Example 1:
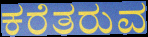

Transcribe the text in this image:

ಕರೆತರುವ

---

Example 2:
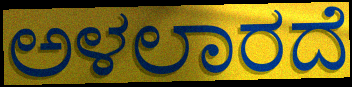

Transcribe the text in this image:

ಅಳಲಾರದೆ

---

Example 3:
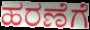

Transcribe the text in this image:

ಹರಣೆಗೆ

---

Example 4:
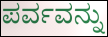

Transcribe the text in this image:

ಪರ್ವವನ್ನು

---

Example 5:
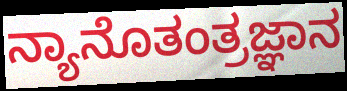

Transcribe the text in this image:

ನ್ಯಾನೊತಂತ್ರಜ್ಞಾನ